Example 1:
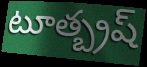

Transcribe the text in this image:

టూత్బ్రష్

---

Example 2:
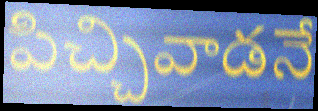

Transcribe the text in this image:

పిచ్చివాడనే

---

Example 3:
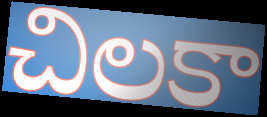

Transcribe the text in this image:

చిలకా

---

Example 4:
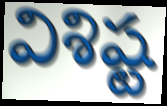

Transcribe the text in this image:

విశిష్ట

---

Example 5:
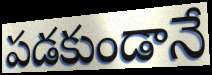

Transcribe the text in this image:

పడకుండానే